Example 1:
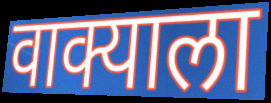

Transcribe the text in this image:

वाक्याला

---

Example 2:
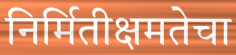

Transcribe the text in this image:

निर्मितीक्षमतेचा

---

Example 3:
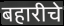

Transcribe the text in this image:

बहारीचे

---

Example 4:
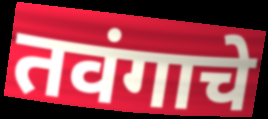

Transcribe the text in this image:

तवंगाचे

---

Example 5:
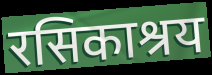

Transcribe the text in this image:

रसिकाश्रय